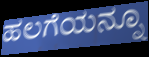
ಹಲಗೆಯನ್ನೂ